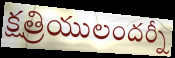
క్షత్రియులందర్నీ